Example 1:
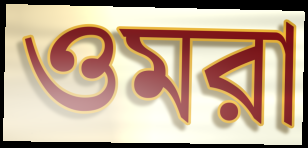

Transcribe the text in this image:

ওমরা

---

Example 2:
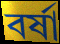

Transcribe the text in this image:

বর্ষা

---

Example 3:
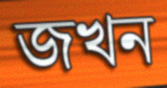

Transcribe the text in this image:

জখন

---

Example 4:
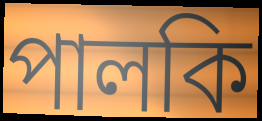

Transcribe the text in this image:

পালকি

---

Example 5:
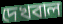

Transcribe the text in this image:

দেখবাল